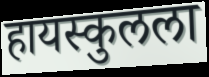
हायस्कुलला